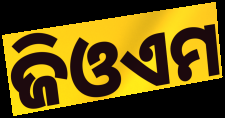
ଜିଓଏମ